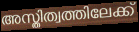
അസ്തിത്വത്തിലേക്ക്